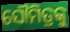
ସୌମିତ୍ରକୁ